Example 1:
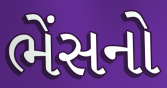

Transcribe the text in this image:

ભેંસનો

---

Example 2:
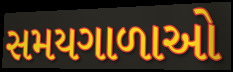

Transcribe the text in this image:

સમયગાળાઓ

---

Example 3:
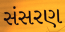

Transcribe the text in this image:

સંસરણ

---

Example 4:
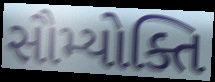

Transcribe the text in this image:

સૌમ્યોક્તિ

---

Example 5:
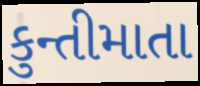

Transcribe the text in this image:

કુન્તીમાતા